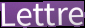
Lettre